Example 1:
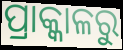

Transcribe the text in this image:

ପ୍ରାକ୍କାଳରୁ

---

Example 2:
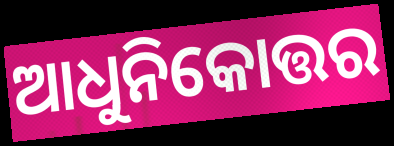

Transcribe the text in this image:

ଆଧୁନିକୋତ୍ତର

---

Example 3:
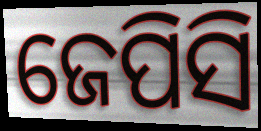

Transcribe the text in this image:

ଜେପିସି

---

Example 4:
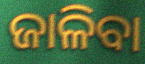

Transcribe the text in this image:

ଜାଳିବା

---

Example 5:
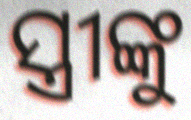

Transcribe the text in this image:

ସ୍ତ୍ରୀଙ୍କୁ